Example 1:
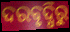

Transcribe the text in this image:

ଦରବୃଦ୍ଧିରୁ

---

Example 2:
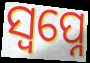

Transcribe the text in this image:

ସ୍ବପ୍ନେ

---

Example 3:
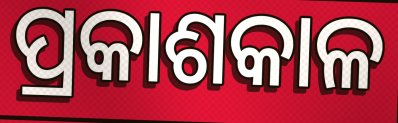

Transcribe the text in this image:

ପ୍ରକାଶକାଳ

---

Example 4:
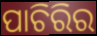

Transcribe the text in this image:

ପାଚିରିର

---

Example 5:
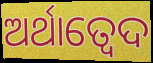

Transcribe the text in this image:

ଅର୍ଥାତ୍ବେଦ